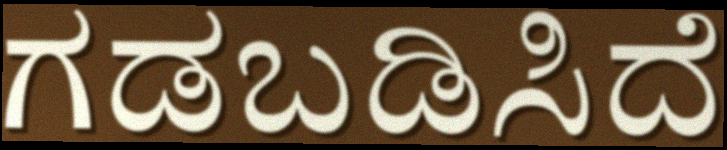
ಗಡಬಡಿಸಿದೆ